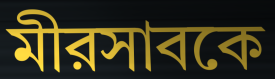
মীরসাবকে